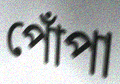
পোঁপা